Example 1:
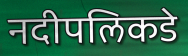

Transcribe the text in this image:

नदीपलिकडे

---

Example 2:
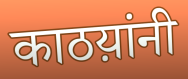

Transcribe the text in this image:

काठय़ांनी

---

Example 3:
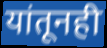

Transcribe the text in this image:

यांतूनही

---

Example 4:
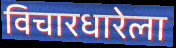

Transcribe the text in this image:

विचारधारेला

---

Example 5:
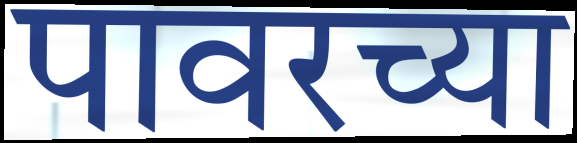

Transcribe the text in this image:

पावरच्या